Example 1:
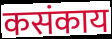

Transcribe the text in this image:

कसंकाय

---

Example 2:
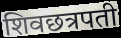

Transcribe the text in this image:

शिवछत्रपती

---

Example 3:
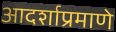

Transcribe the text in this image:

आदर्शाप्रमाणे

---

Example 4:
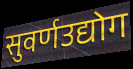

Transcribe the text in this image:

सुवर्णउद्योग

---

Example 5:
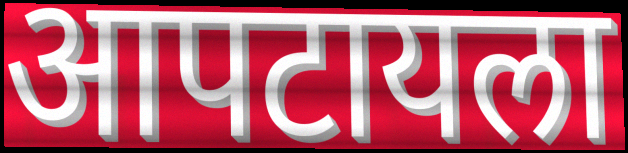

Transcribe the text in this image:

आपटायला